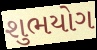
શુભયોગ